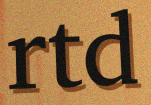
rtd